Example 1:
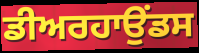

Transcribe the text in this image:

ਡੀਅਰਹਾਉਂਡਸ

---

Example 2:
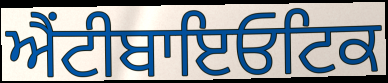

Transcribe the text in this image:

ਐਂਟੀਬਾਇਓਟਿਕ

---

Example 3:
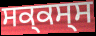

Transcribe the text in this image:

ਸਕ੍ਕਸ੍ਸ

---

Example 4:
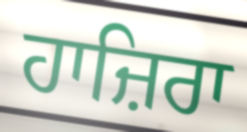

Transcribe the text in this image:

ਹਾਜ਼ਿਰਾ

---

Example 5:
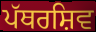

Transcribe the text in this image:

ਪੱਥਰਸ਼ਿਵ